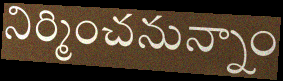
నిర్మించనున్నాం